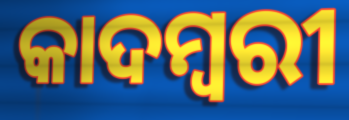
କାଦମ୍ବରୀ